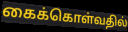
கைக்கொள்வதில்